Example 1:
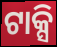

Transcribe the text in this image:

ଟାକ୍ସି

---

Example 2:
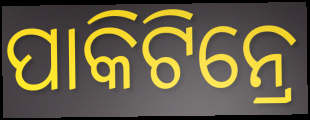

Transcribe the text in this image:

ପାକିଟିନ୍ରେ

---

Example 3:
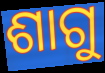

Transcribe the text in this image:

ଶାଗୁ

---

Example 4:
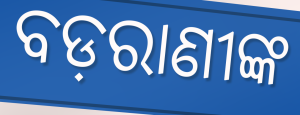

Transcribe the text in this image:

ବଡ଼ରାଣୀଙ୍କ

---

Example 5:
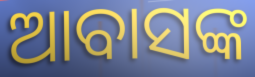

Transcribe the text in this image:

ଆବାସଙ୍କ